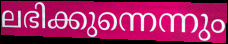
ലഭിക്കുന്നെന്നും